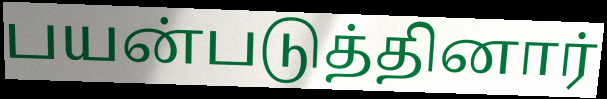
பயன்படுத்தினார்